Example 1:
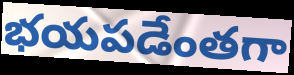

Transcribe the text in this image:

భయపడేంతగా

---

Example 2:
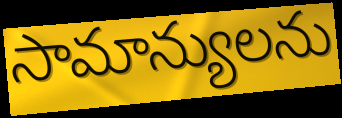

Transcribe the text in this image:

సామాన్యులను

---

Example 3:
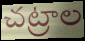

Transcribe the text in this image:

చట్రాల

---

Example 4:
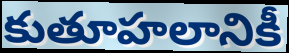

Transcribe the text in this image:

కుతూహలానికీ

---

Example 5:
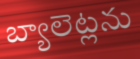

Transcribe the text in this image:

బ్యాలెట్లను